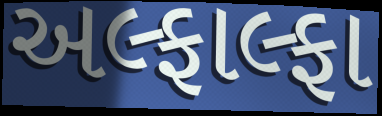
અલ્ફાલ્ફા